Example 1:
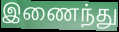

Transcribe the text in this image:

இணைந்து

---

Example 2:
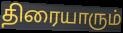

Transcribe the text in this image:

திரையாரும்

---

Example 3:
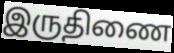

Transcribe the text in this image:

இருதிணை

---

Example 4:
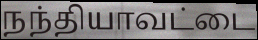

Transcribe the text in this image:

நந்தியாவட்டை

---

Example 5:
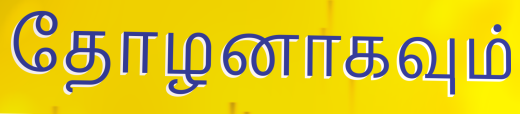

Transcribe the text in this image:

தோழனாகவும்